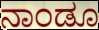
ನಾಂಡೂ